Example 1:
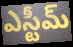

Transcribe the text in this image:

ఎస్టీమ్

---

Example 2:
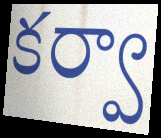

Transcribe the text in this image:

కర్వా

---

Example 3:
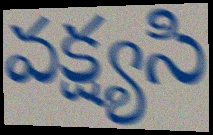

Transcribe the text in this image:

వక్ష్యసి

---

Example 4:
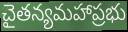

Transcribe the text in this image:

చైతన్యమహాప్రభు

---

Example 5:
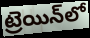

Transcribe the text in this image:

ట్రెయిన్‌లో